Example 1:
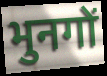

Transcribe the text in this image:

भुनगों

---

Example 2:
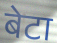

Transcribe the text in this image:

बेटा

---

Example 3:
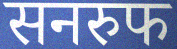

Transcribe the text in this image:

सनरुफ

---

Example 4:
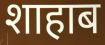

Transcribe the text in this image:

शाहाब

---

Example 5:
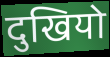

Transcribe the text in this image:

दुखियो